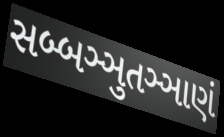
સબ્બઞ્ઞુતઞ્ઞાણં